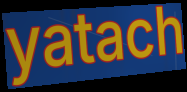
yatach